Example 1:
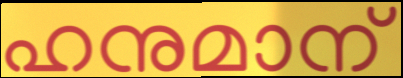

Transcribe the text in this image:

ഹനുമാന്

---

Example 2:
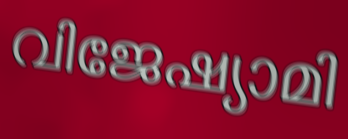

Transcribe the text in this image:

വിജേഷ്യാമി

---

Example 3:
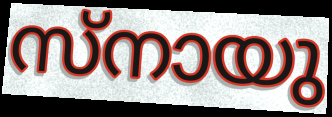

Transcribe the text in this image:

സ്നായു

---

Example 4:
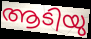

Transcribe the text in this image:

ആടിയു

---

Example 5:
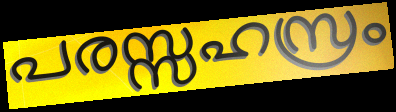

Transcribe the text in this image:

പരസ്സഹസ്രം